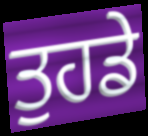
ਤੁਹਡੇ